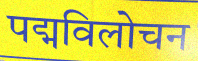
पद्मविलोचन